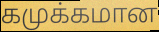
கமுக்கமான